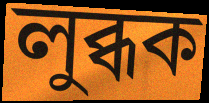
লুব্ধক